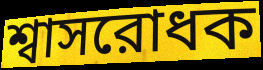
শ্বাসরোধক